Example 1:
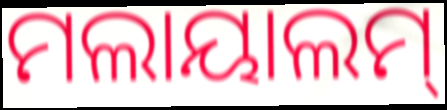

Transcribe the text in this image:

ମଲାୟାଲମ୍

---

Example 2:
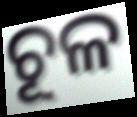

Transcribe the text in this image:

ଚୂଳ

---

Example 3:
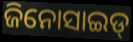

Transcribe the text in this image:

ଜିନୋସାଇଡ୍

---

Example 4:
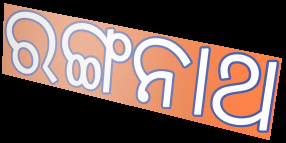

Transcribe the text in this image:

ରଙ୍ଗନାଥ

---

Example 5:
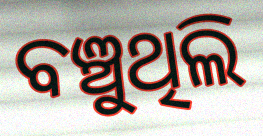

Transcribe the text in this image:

ବଞ୍ଚୁଥିଲି